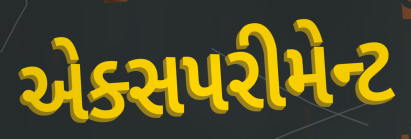
એક્સપરીમેન્ટ